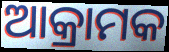
ଆକ୍ରାମକ